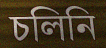
চলিনি